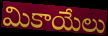
మికాయేలు